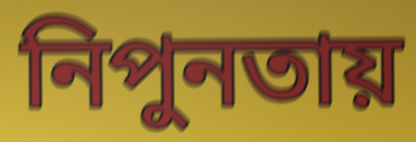
নিপুনতায়